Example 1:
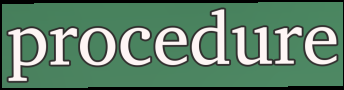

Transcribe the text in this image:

procedure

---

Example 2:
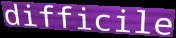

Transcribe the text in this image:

difficile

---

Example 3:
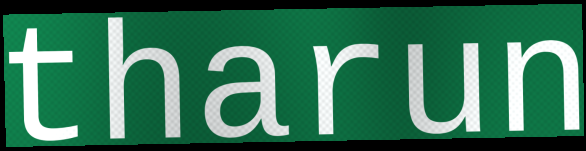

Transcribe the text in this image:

tharun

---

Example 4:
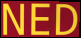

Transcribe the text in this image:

NED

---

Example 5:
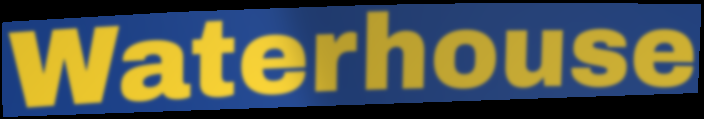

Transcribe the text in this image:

Waterhouse